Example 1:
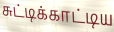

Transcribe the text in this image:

சுட்டிக்காட்டிய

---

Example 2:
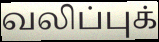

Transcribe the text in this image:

வலிப்புக்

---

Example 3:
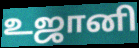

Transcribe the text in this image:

உஜானி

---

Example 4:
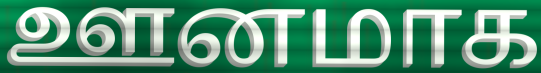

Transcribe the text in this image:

ஊனமாக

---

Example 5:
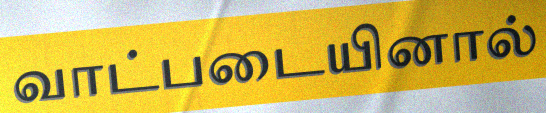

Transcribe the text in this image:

வாட்படையினால்